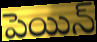
పెయిన్